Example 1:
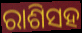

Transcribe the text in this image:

ରାଶିସହ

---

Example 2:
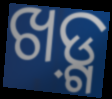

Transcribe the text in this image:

ଖଡ଼୍ଗ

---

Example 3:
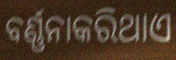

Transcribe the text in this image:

ବର୍ଣ୍ଣନାକରିଥାଏ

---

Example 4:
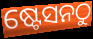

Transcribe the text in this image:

ଷ୍ଟେସନଠୁ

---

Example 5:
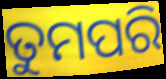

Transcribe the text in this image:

ତୁମପରି